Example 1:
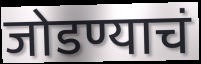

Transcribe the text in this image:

जोडण्याचं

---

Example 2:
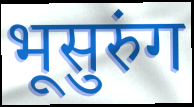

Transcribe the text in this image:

भूसुरुंग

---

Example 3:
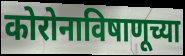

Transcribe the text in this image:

कोरोनाविषाणूच्या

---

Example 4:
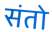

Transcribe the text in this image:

संतो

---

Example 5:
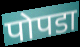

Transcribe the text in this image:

पोपडा